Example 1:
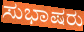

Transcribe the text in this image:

ಸುಭಾಷರು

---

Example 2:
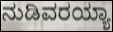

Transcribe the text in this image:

ನುಡಿವರಯ್ಯಾ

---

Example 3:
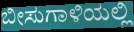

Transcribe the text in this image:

ಬೀಸುಗಾಳಿಯಲ್ಲಿ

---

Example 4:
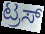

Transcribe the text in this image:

ಟ್ರಸ್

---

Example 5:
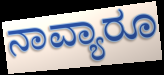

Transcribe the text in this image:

ನಾವ್ಯಾರೂ